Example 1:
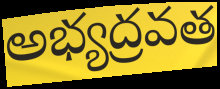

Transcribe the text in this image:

అభ్యద్రవత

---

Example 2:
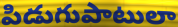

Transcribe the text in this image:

పిడుగుపాటులా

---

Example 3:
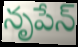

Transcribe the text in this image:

నృపేన్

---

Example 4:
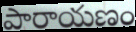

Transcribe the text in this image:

పారాయణం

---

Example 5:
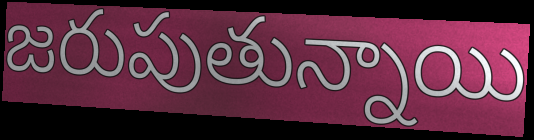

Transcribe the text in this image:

జరుపుతున్నాయి